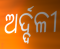
ଅର୍ଦ୍ଦଳୀ